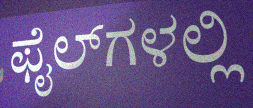
ಫೈಲ್‌ಗಳಲ್ಲಿ